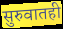
सुरुवातही